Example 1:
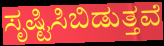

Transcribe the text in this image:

ಸೃಷ್ಟಿಸಿಬಿಡುತ್ತವೆ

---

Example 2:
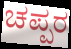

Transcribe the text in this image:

ಚಪ್ಪರ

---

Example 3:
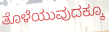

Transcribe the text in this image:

ತೊಳೆಯುವುದಕ್ಕೂ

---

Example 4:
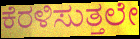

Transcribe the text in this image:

ಕೆರಳಿಸುತ್ತಲೇ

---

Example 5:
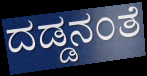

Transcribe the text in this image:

ದಡ್ಡನಂತೆ